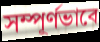
সম্পূৰ্ণভাবে